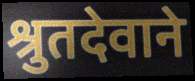
श्रुतदेवाने